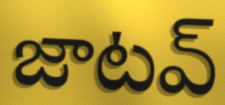
జాటవ్